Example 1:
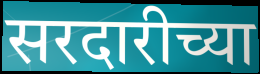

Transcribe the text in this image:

सरदारीच्या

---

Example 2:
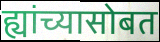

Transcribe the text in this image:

ह्यांच्यासोबत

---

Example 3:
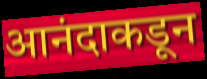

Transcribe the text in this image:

आनंदाकडून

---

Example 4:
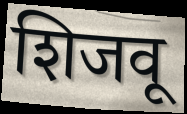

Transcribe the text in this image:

शिजवू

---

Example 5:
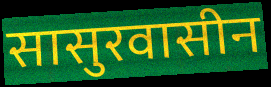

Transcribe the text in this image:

सासुरवासीन